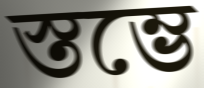
স্তম্ভে